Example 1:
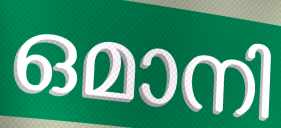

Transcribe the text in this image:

ഒമാനി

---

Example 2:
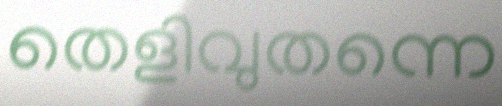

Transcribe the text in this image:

തെളിവുതന്നെ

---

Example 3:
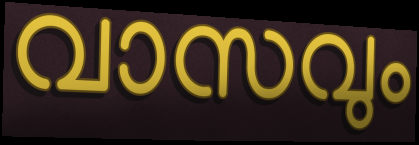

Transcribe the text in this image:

വാസവും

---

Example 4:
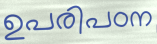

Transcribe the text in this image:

ഉപരിപഠന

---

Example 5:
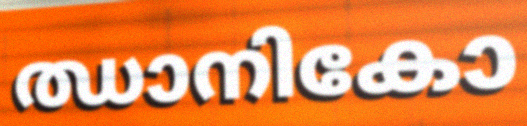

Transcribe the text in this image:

ഝാനികോ